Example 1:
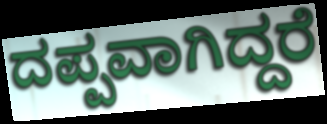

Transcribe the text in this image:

ದಪ್ಪವಾಗಿದ್ದರೆ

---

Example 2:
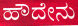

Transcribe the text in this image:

ಹೌದೇನು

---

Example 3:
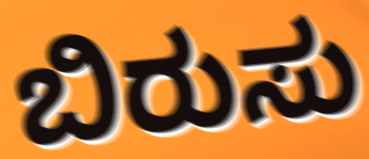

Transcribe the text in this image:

ಬಿರುಸು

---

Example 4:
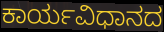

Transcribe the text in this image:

ಕಾರ್ಯವಿಧಾನದ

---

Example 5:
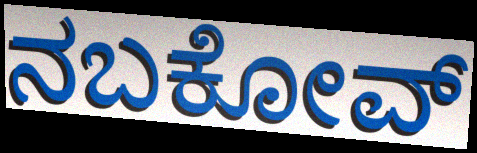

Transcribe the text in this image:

ನಬಕೋವ್